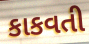
કાકવતી